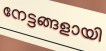
നേട്ടങ്ങളായി